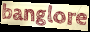
banglore